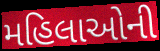
મહિલાઓની